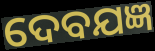
ଦେବଯଜ୍ଞ